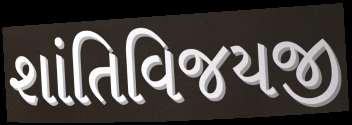
શાંતિવિજયજી